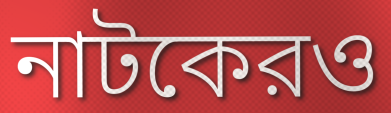
নাটকেরও